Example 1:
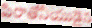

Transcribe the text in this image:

పిరాతోనీయుడైన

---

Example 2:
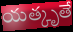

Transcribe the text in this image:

యత్కృతే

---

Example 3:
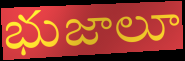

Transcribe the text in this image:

భుజాలూ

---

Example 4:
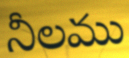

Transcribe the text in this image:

నీలము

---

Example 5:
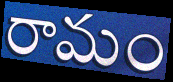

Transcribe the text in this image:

రామం